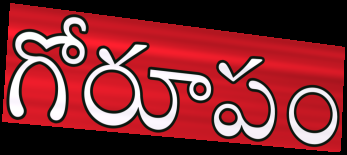
గోరూపం